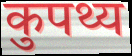
कुपथ्य